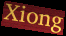
Xiong